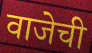
वाजेची